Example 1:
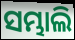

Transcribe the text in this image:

ସମ୍ଭାଲି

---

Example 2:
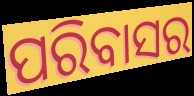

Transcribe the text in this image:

ପରିବାସର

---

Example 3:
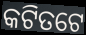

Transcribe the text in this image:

କଟିତଟେ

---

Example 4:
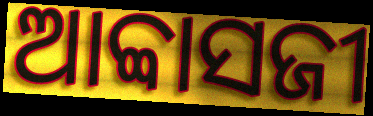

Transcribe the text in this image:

ଆବ୍ବାସଜୀ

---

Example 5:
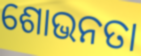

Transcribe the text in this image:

ଶୋଭନତା